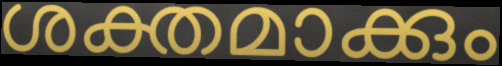
ശക്തമാക്കും